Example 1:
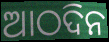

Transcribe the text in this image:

ଆଠଦିନ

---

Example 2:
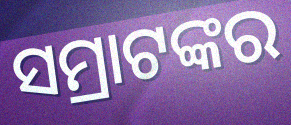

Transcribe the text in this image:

ସମ୍ରାଟଙ୍କର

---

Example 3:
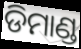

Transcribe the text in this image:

ଡିମାଣ୍ଡ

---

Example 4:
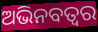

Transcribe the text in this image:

ଅଭିନବତ୍ୱର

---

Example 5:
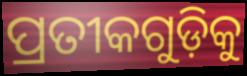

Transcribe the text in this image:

ପ୍ରତୀକଗୁଡ଼ିକୁ